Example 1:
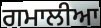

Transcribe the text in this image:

ਗਮਾਲੀਆ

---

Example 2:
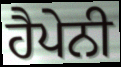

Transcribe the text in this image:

ਹੈਪੇਨੀ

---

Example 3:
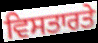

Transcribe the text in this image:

ਵਿਸਤਾਰਤੇ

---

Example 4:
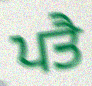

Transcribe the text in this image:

ਪਤੈ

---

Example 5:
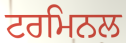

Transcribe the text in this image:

ਟਰਮਿਨਲ